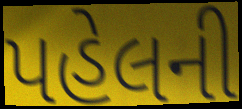
પહેલની